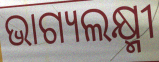
ଭାଗ୍ୟଲକ୍ଷ୍ମୀ